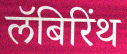
लॅबिरिंथ